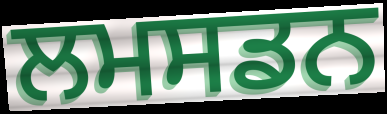
ਲਮਸਡਨ